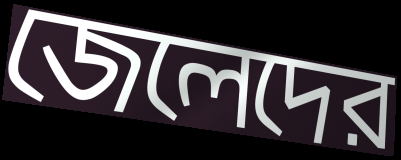
জেলেদের